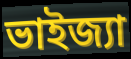
ভাইজ্যা